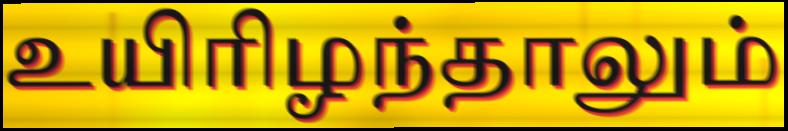
உயிரிழந்தாலும்